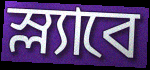
স্ল্যাবে